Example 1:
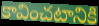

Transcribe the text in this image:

కావించటానికి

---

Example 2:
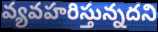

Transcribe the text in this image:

వ్యవహరిస్తున్నదని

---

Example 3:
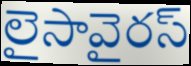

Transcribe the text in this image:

లైసావైరస్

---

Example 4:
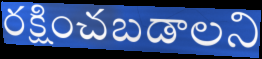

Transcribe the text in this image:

రక్షించబడాలని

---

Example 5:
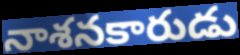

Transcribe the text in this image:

నాశనకారుడు